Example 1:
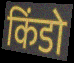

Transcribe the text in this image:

किंडो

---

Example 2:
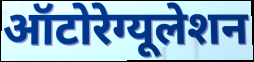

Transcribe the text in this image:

ऑटोरेग्यूलेशन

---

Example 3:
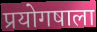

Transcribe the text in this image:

प्रयोगषाला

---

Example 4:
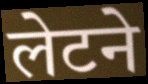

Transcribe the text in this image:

लेटने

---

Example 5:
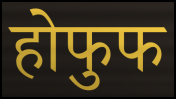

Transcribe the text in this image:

होफुफ